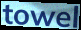
towel